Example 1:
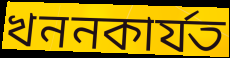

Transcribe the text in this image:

খননকাৰ্যত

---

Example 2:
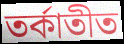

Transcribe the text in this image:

তৰ্কাতীত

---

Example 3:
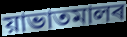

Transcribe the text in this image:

য়াভাতমালৰ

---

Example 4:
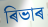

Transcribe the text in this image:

ৰিভাৰ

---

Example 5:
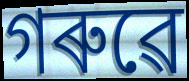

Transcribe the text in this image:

গৰুৱে